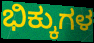
ಭಿಕ್ಕುಗಳ